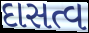
દાસત્વ